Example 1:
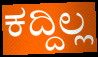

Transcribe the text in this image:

ಕದ್ದಿಲ್ಲ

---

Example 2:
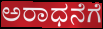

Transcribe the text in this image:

ಅರಾಧನೆಗೆ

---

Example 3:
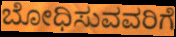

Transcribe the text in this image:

ಬೋಧಿಸುವವರಿಗೆ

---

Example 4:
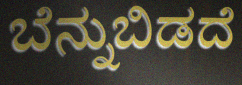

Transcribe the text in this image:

ಬೆನ್ನುಬಿಡದೆ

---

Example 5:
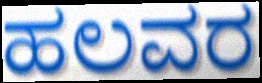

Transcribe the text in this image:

ಹಲವರ